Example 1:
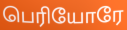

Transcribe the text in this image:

பெரியோரே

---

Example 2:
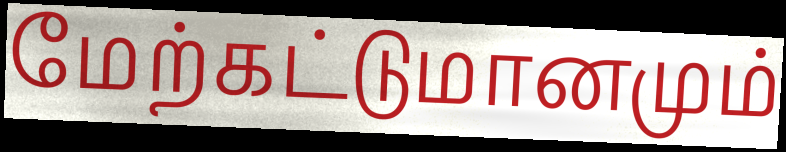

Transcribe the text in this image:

மேற்கட்டுமானமும்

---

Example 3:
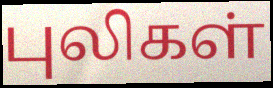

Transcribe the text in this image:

புலிகள்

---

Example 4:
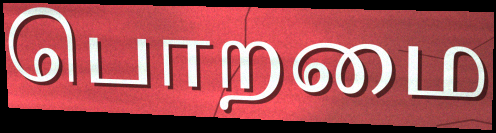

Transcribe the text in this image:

பொறமை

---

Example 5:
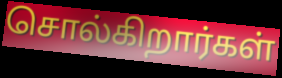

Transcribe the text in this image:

சொல்கிறார்கள்